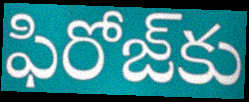
ఫిరోజ్‌కు